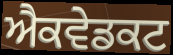
ਐਕਵੇਡਕਟ